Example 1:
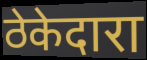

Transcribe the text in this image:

ठेकेदारा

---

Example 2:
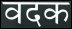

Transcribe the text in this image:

वदक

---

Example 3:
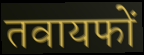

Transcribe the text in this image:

तवायफों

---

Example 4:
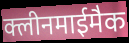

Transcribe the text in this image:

क्लीनमाईमैक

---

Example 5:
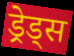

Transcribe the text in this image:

ड्रेड्स